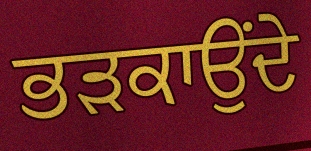
ਭੜਕਾਉਂਦੇ